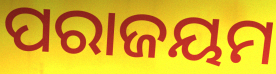
ପରାଜୟମ